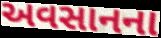
અવસાનના